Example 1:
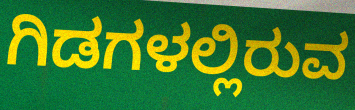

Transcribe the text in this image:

ಗಿಡಗಳಲ್ಲಿರುವ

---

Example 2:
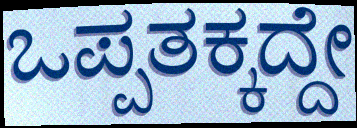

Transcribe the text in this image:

ಒಪ್ಪತಕ್ಕದ್ದೇ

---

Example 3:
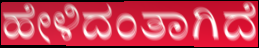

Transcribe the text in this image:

ಹೇಳಿದಂತಾಗಿದೆ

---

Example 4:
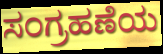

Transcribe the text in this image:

ಸಂಗ್ರಹಣೆಯ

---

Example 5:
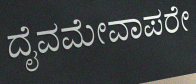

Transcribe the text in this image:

ದೈವಮೇವಾಪರೇ